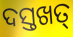
ଦସ୍ତଖତ୍